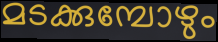
മടക്കുമ്പോഴും